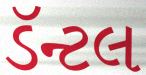
ડૅન્ટલ